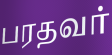
பரதவர்